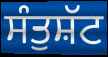
ਸੰਤੁਸ਼ੱਟ